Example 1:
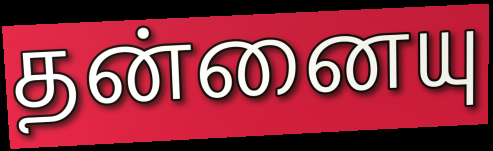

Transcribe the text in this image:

தன்னையு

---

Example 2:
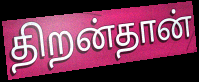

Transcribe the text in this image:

திறன்தான்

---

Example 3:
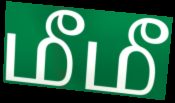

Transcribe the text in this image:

மீமீ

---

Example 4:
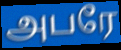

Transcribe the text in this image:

அபரே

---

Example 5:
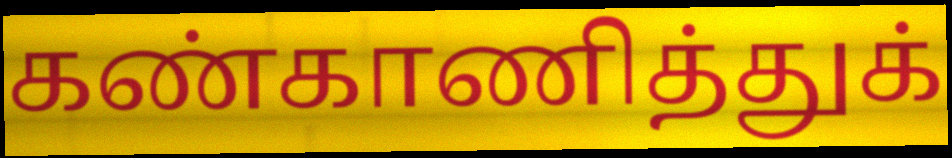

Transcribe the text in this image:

கண்காணித்துக்